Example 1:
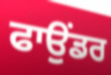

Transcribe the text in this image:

ਫਾਉਂਡਰ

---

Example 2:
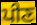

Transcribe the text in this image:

ਪੀਣ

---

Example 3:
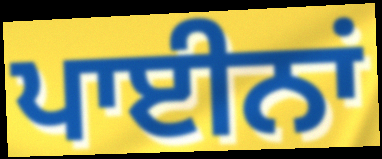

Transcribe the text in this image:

ਪਾਈਨਾਂ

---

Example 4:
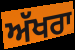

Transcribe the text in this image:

ਅੱਖਰਾ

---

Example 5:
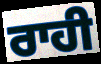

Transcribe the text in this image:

ਰਾਹੀ